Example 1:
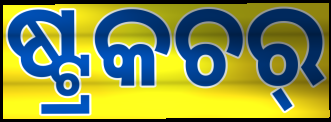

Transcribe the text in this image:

ଷ୍ଟ୍ରକଚର୍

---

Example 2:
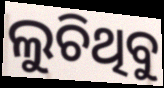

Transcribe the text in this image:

ଲୁଚିଥିବୁ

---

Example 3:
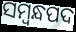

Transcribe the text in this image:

ସମ୍ବନ୍ଧପଦ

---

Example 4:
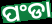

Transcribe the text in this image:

ପଂଡା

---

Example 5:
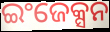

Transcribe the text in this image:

ଇଂଜେକ୍ସନ